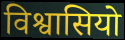
विश्वासियो